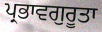
ਪ੍ਰਭਾਵਗੁਰੂਤਾ